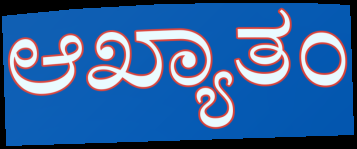
ಆಖ್ಯಾತಂ